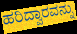
ಹರಿದ್ವಾರವನ್ನು